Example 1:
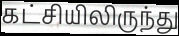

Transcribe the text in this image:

கட்சியிலிருந்து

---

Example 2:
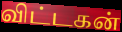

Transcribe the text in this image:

விட்டகன்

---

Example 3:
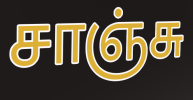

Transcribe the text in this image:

சாஞ்சு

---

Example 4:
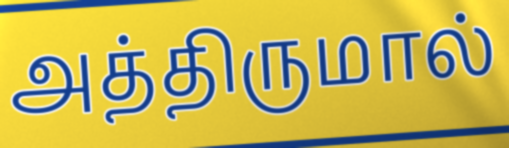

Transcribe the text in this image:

அத்திருமால்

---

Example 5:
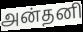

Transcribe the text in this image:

அன்தனி